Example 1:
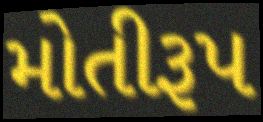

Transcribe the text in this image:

મોતીરૂપ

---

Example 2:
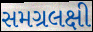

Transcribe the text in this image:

સમગ્રલક્ષી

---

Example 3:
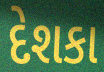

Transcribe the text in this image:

દેશકા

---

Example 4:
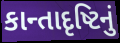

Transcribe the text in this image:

કાન્તાદૃષ્ટિનું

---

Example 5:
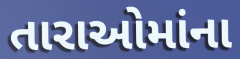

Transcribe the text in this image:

તારાઓમાંના